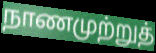
நாணமுற்றுத்